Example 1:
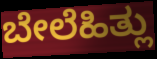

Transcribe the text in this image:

ಬೇಲೆಹಿತ್ಲು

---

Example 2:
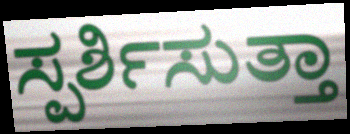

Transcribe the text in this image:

ಸ್ಪರ್ಶಿಸುತ್ತಾ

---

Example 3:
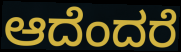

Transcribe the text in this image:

ಆದೆಂದರೆ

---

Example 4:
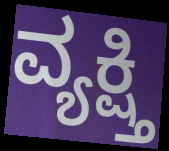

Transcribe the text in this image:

ವ್ಯಕ್ಷ್ತಿ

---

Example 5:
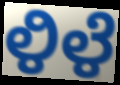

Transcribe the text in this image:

ಳಿಳೆ